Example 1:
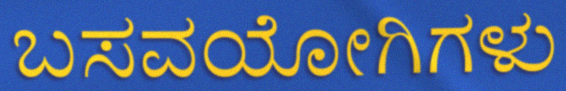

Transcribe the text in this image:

ಬಸವಯೋಗಿಗಳು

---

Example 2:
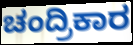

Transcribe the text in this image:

ಚಂದ್ರಿಕಾರ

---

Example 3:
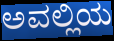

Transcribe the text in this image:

ಅವಲ್ಲಿಯ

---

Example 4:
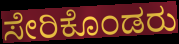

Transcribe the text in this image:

ಸೇರಿಕೊಂಡರು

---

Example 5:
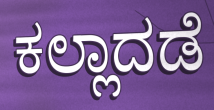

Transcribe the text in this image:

ಕಲ್ಲಾದಡೆ